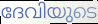
ദേവിയുടെ